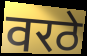
वरठे